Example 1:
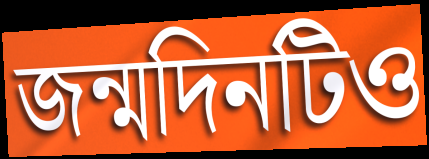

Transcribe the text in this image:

জন্মদিনটিও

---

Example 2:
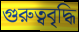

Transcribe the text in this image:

গুরুত্ববৃদ্ধি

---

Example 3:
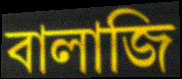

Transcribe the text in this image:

বালাজি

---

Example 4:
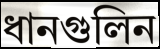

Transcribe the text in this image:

ধানগুলিন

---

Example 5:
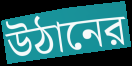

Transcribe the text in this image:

উঠানের